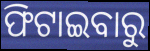
ଫିଟାଇବାରୁ